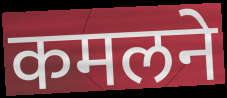
कमलने